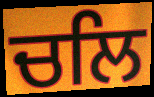
ਚਲਿ